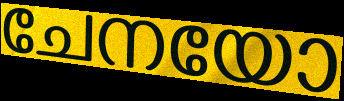
ചേനയോ